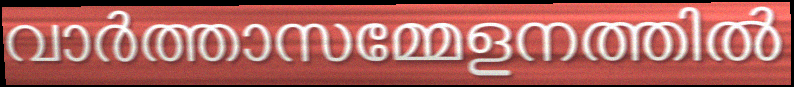
വാർത്താസമ്മേളനത്തിൽ